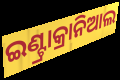
ଇଣ୍ଟ୍ରାକ୍ରାନିଆଲ